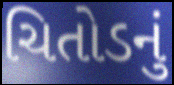
ચિતોડનું